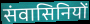
संवासिनियों